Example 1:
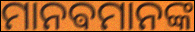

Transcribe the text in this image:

ମାନଵମାନଙ୍କ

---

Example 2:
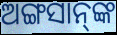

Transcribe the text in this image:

ଅଙ୍ଗସାନ୍‌ଙ୍କ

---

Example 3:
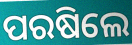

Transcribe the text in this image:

ପରଷିଲେ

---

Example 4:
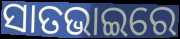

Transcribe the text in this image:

ସାତଭାଇରେ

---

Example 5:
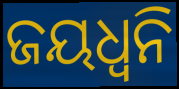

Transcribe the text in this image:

ଜୟଧ୍ୱନି